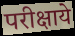
परीक्षाये